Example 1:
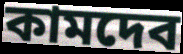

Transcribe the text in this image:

কামদেব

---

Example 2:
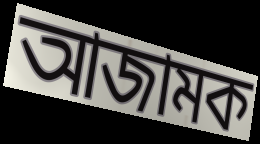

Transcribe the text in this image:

আজামক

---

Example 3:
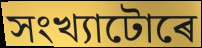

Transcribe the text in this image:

সংখ্যাটোৰে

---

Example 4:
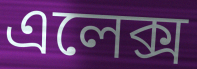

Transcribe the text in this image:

এলেক্স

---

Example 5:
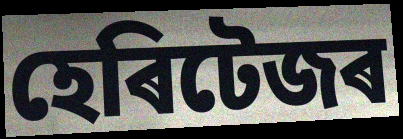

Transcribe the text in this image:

হেৰিটেজৰ